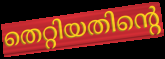
തെറ്റിയതിന്റെ